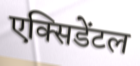
एक्सिडेंटल